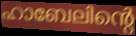
ഹാബേലിന്റെ